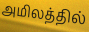
அமிலத்தில்